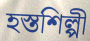
হস্তশিল্পী